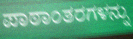
ಪಾಠಾಂತರಗಳನ್ನು